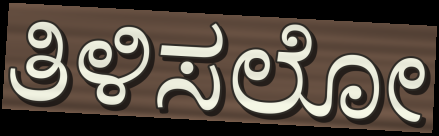
ತಿಳಿಸಲೋ